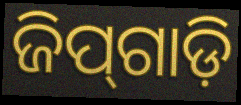
ଜିପ୍‌ଗାଡ଼ି